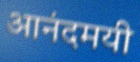
आनंदमयी